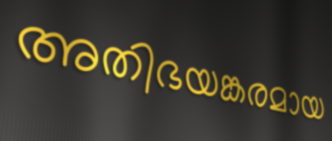
അതിഭയങ്കരമായ